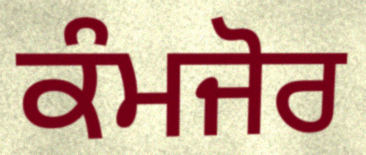
ਕੰਮਜੋਰ